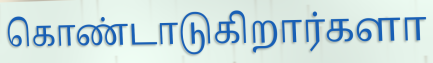
கொண்டாடுகிறார்களா